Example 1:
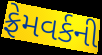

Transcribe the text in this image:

ફ્રેમવર્કની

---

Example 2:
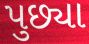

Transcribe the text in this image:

પુછ્યા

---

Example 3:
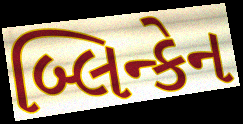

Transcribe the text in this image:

બ્લિન્કેન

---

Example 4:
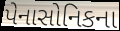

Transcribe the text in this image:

પેનાસોનિકના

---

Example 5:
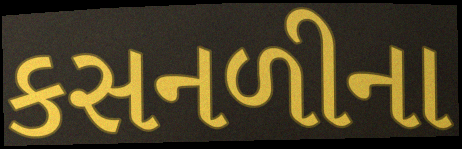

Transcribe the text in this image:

કસનળીના